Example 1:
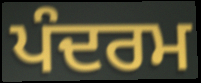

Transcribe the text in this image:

ਪੰਦਰਮ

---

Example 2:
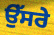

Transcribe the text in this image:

ਉੱਸਰੇ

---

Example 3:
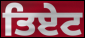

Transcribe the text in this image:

ਤਿਏਟ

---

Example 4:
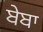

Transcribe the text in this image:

ਬੇਬਾ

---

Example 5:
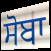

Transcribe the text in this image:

ਸੋਬਾ